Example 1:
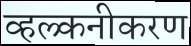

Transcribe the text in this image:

व्हल्कनीकरण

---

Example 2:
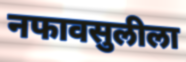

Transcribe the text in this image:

नफावसुलीला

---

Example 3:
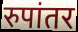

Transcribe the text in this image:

रुपांतर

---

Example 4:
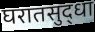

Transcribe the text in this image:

घरातसुद्धा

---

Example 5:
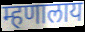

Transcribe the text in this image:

म्हणालाय